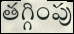
తగ్గింపు